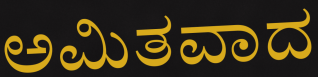
ಅಮಿತವಾದ